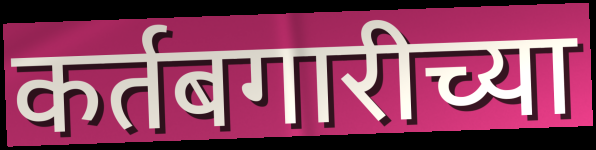
कर्तबगारीच्या